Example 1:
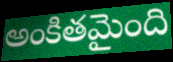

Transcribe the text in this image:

అంకితమైంది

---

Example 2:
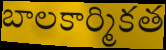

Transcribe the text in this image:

బాలకార్మికత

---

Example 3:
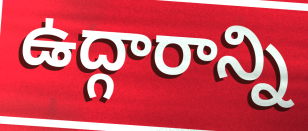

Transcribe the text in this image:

ఉద్గారాన్ని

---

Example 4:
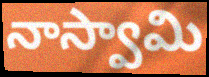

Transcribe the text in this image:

నాస్వామి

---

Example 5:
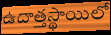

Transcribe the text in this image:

ఉదాత్తస్థాయిలో